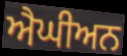
ਐਘੀਅਨ